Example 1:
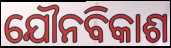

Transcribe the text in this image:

ଯୌନବିକାଶ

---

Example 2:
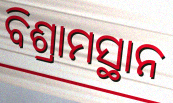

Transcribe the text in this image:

ବିଶ୍ରାମସ୍ଥାନ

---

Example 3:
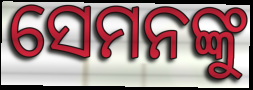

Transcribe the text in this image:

ସେମନଙ୍କୁ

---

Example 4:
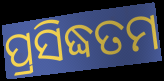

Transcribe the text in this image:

ପ୍ରସିଦ୍ଧତମ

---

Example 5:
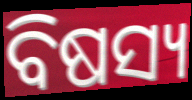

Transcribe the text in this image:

ବିଷସ୍ୟ